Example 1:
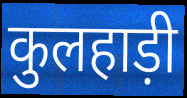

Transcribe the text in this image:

कुलहाड़ी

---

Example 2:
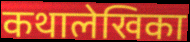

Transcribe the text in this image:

कथालेखिका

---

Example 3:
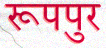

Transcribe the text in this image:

रूपपुर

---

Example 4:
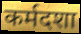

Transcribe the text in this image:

कर्मदशा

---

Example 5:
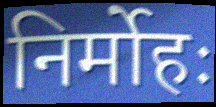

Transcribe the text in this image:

निर्मोहः